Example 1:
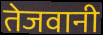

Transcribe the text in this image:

तेजवानी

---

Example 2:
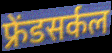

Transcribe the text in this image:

फ्रेंडसर्कल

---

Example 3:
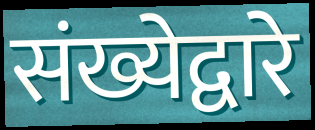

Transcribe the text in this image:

संख्येद्वारे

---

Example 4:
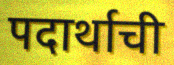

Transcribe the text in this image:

पदार्थाची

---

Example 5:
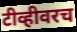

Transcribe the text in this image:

टीव्हीवरच